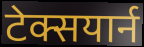
टेक्सयार्न